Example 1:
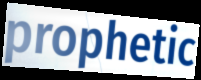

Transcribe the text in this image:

prophetic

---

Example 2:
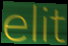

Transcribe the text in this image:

elit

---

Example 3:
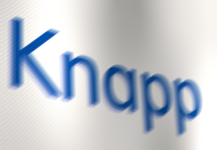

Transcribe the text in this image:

Knapp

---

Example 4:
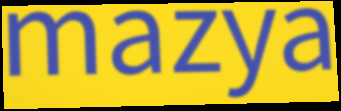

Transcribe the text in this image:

mazya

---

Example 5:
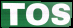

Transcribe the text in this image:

TOS